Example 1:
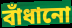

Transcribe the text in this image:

বাঁধানো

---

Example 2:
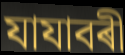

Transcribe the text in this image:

যাযাবৰী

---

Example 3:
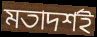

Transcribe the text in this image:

মতাদৰ্শই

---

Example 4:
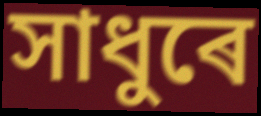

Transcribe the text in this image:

সাধুৰে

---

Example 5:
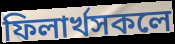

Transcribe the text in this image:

ফিলাৰ্খসকলে